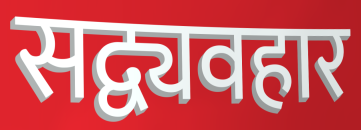
सद्व्यवहार